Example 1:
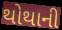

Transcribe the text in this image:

થોથાની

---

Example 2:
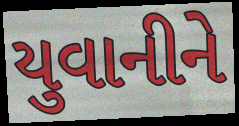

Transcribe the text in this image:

યુવાનીને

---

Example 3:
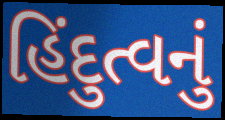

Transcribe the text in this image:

હિંદુત્વનું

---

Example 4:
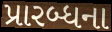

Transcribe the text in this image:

પ્રારબ્ધના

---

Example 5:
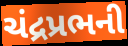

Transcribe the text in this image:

ચંદ્રપ્રભની